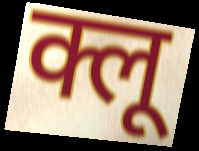
क्लू